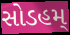
સોડહમ્